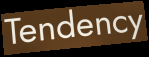
Tendency